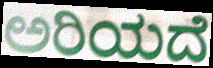
ಅರಿಯದೆ